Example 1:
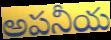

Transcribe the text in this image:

అపనీయ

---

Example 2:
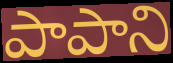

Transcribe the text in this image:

పాపాని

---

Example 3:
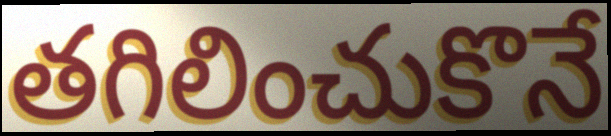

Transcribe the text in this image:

తగిలించుకొనే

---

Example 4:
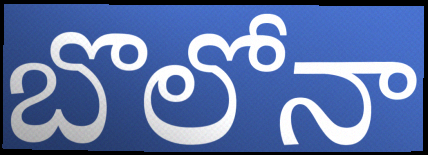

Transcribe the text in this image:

బొలోనా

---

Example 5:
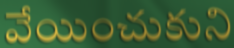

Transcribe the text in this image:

వేయించుకుని